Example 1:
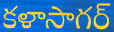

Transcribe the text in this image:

కళాసాగర్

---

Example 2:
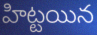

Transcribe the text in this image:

హిట్టయిన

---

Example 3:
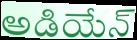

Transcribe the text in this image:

అడియేన్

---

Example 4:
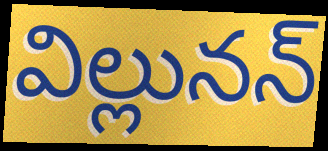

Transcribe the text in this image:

విల్లునన్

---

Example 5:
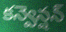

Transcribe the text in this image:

కన్వెన్షన్